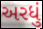
અરધું